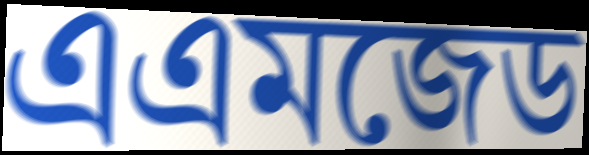
এএমজেড